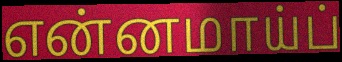
என்னமாய்ப்